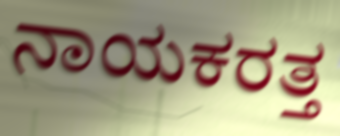
ನಾಯಕರತ್ತ